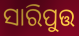
ସାରିପୁତ୍ତ